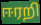
ஈரறி